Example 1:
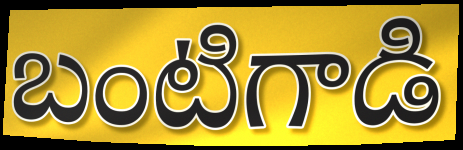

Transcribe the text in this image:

బంటిగాడి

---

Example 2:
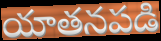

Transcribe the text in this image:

యాతనపడి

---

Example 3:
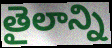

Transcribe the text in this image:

తైలాన్ని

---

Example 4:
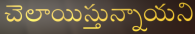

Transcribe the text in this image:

చెలాయిస్తున్నాయని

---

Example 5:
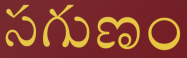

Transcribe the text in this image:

సగుణం